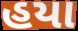
હયા